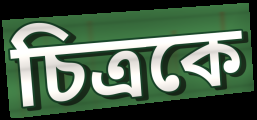
চিত্ৰকে